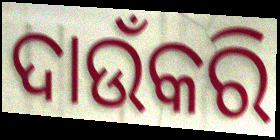
ଦାଉଁକରି